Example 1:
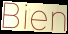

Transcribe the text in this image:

Bien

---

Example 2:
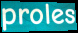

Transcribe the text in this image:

proles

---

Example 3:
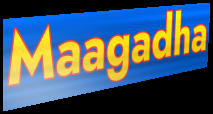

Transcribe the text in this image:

Maagadha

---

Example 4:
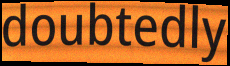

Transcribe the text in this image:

doubtedly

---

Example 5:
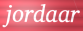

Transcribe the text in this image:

jordaar